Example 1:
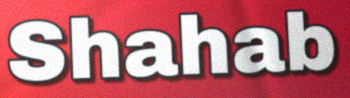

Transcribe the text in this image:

Shahab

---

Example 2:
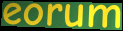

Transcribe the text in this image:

eorum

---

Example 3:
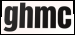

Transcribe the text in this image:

ghmc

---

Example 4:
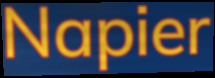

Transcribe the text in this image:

Napier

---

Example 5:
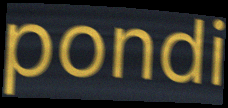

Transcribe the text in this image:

pondi